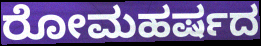
ರೋಮಹರ್ಷದ